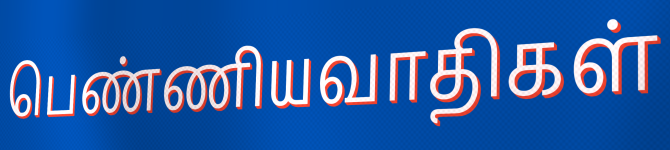
பெண்ணியவாதிகள்